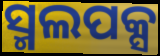
ସ୍ମଲପକ୍ସ